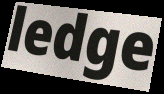
ledge